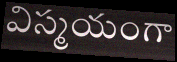
విస్మయంగా